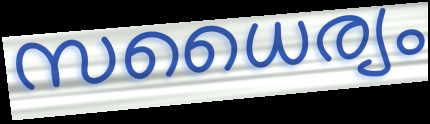
സധൈര്യം